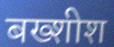
बख्शीश